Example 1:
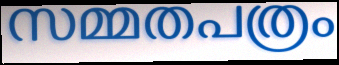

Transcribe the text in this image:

സമ്മതപത്രം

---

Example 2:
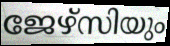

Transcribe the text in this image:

ജേഴ്സിയും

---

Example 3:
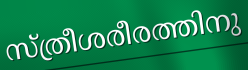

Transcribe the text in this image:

സ്ത്രീശരീരത്തിനു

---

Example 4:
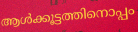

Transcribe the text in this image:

ആൾക്കൂട്ടത്തിനൊപ്പം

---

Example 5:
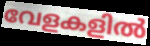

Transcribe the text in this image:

വേളകളിൽ